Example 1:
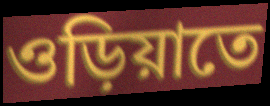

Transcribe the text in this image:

ওড়িয়াতে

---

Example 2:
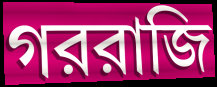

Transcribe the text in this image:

গররাজি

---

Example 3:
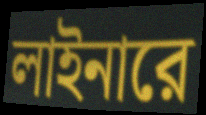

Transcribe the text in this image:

লাইনারে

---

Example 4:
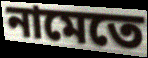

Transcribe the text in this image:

নামেতে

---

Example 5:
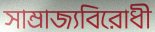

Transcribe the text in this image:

সাম্রাজ্যবিরোধী